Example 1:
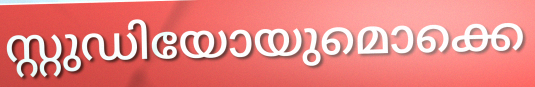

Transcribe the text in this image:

സ്റ്റുഡിയോയുമൊക്കെ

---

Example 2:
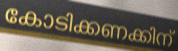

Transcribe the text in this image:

കോടിക്കണക്കിന്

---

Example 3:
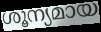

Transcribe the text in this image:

ശൂന്യമായ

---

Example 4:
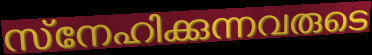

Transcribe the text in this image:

സ്‌നേഹിക്കുന്നവരുടെ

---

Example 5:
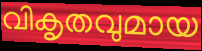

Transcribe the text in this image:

വികൃതവുമായ